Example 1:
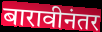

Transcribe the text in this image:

बारावीनंतर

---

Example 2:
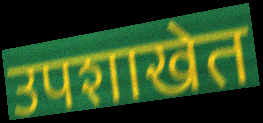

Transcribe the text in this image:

उपशाखेत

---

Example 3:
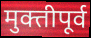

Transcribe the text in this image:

मुक्तीपूर्व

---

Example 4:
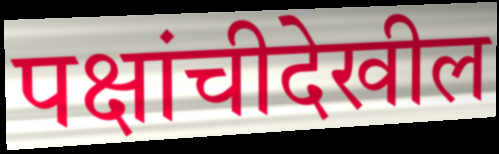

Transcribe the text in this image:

पक्षांचीदेखील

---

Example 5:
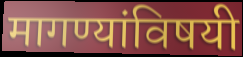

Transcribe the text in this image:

मागण्यांविषयी